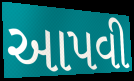
આપવી